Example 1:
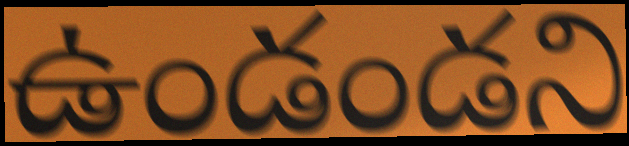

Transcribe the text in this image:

ఉండండని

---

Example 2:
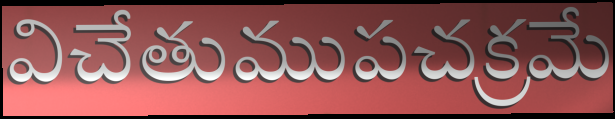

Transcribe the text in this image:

విచేతుముపచక్రమే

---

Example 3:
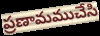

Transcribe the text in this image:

ప్రణామముచేసి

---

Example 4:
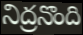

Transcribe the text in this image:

నిద్రనొంది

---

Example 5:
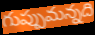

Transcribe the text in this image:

గుప్పుమన్నది